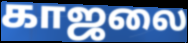
காஜலை